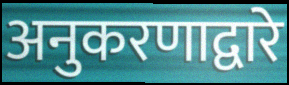
अनुकरणाद्वारे